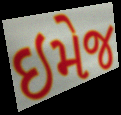
ઇમેજ